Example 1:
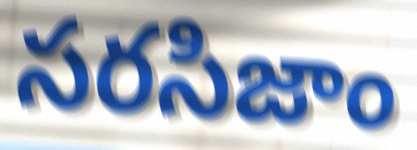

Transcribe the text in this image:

సరసిజాం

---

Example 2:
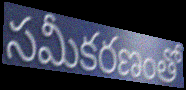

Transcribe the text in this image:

సమీకరణంతో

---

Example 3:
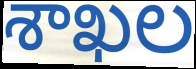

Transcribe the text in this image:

శాఖల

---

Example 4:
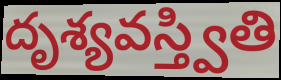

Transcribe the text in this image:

దృశ్యవస్త్వితి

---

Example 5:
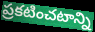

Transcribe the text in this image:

ప్రకటించటాన్ని